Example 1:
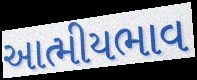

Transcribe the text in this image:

આત્મીયભાવ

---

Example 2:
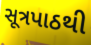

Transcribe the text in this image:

સૂત્રપાઠથી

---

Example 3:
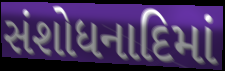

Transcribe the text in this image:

સંશોધનાદિમાં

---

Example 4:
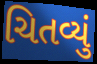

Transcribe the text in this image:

ચિતવ્યું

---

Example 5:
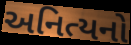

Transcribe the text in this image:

અનિત્યનો